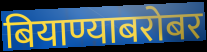
बियाण्याबरोबर